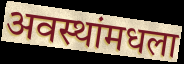
अवस्थांमधला